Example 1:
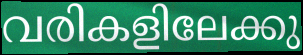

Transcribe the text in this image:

വരികളിലേക്കു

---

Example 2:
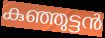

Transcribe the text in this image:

കുഞ്ഞുട്ടൻ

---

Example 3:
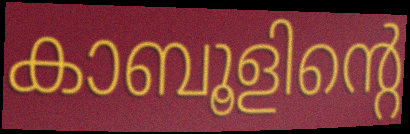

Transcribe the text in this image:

കാബൂളിന്റെ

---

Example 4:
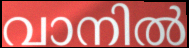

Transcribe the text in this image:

വാനിൽ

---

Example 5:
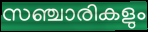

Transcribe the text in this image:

സഞ്ചാരികളും